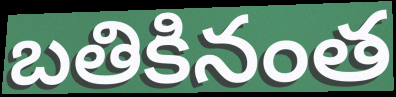
బతికినంత